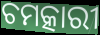
ଚମତ୍କାରୀ